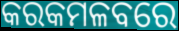
କରକମଳବରେ